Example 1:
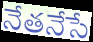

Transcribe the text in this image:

నేతనేసే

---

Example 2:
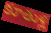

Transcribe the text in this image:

కూతుళ్ల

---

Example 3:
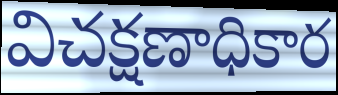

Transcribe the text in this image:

విచక్షణాధికార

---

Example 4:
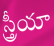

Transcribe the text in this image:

స్త్రీయా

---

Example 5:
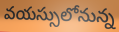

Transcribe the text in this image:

వయస్సులోనున్న